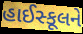
હાઈસ્કૂલને